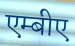
एम्बीए